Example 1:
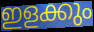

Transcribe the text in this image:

ഇളക്കും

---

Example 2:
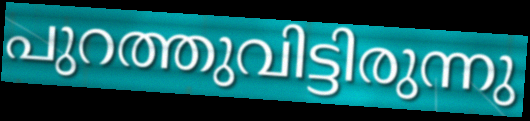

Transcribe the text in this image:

പുറത്തുവിട്ടിരുന്നു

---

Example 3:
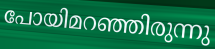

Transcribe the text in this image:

പോയിമറഞ്ഞിരുന്നു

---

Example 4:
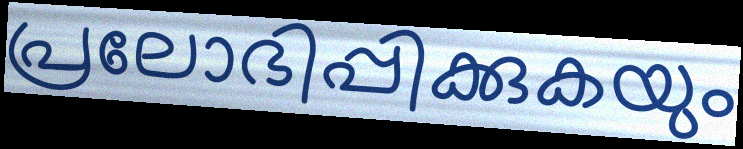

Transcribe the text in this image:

പ്രലോഭിപ്പിക്കുകയും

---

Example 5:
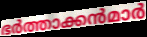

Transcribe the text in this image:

ഭർത്താക്കൻമാർ